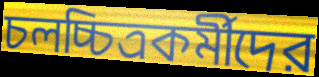
চলচ্চিত্রকর্মীদের